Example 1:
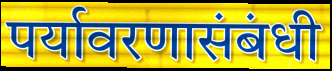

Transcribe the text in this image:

पर्यावरणासंबंधी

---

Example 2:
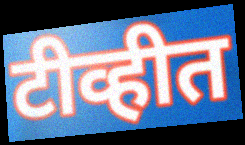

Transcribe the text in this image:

टीव्हीत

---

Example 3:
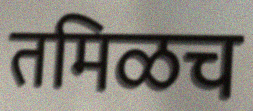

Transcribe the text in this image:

तमिळच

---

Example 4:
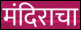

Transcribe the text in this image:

मंदिराचा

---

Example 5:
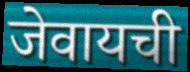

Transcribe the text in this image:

जेवायची